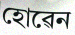
হোৱেন